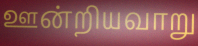
ஊன்றியவாறு